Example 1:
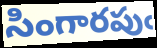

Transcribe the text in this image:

సింగారపుఁ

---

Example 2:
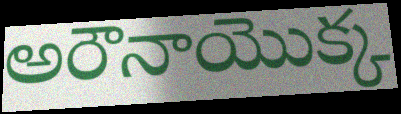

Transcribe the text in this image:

అరౌనాయొక్క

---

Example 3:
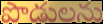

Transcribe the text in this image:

పొడులను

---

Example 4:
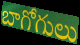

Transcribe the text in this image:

బాగోగులు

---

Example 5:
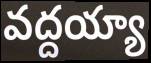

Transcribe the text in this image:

వద్దయ్యా